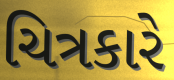
ચિત્રકારે